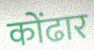
कोंढार